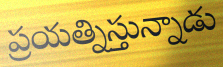
ప్రయత్నిస్తున్నాడు